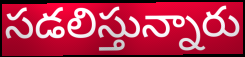
సడలిస్తున్నారు